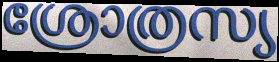
ശ്രോത്രസ്യ